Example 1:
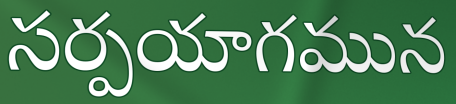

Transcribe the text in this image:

సర్పయాగమున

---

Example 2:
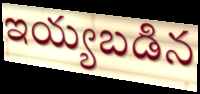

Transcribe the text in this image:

ఇయ్యబడిన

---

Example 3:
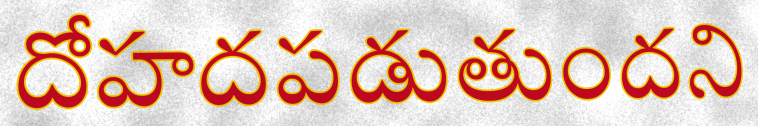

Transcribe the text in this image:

దోహదపడుతుందని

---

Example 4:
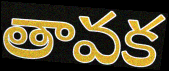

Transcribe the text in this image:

తావక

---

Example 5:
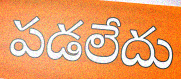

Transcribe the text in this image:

పడలేదు